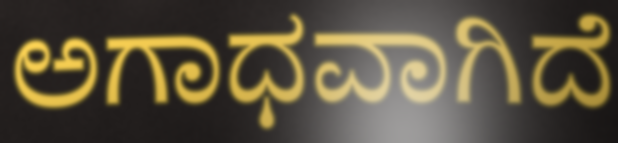
ಅಗಾಧವಾಗಿದೆ